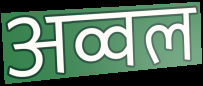
अव्वल